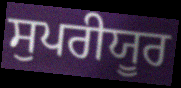
ਸੁਪਰੀਯੂਰ